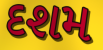
દશમ